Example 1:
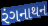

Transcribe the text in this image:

રંગનાથન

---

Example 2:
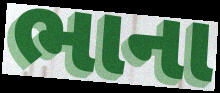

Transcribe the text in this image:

ભાના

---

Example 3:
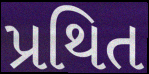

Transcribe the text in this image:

પ્રથિત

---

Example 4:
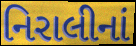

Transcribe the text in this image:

નિરાલીનાં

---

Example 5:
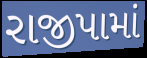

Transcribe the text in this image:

રાજીપામાં